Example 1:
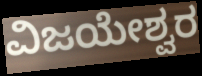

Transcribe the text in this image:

ವಿಜಯೇಶ್ವರ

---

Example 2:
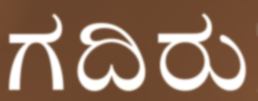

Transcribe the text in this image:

ಗದಿರು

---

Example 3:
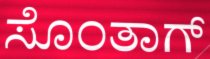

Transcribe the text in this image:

ಸೊಂತಾಗ್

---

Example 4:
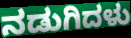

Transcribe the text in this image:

ನಡುಗಿದಳು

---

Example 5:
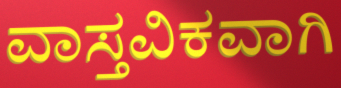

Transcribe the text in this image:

ವಾಸ್ತವಿಕವಾಗಿ